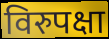
विरुपक्षा